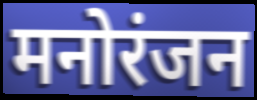
मनोरंजन